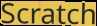
Scratch